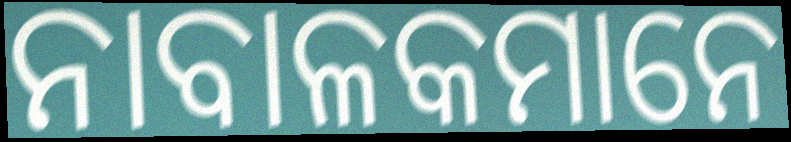
ନାବାଳକମାନେ